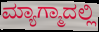
ಮ್ಯಾಗ್ಮಾದಲ್ಲಿ